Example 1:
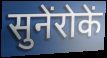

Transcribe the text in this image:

सुनेंरोकें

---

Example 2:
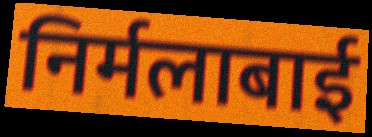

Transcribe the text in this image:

निर्मलाबाई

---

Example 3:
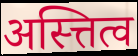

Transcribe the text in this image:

अस्त्तित्व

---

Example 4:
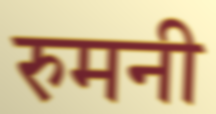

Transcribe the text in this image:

रुमनी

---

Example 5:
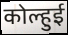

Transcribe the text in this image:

कोल्हुई